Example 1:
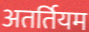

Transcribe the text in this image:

अतर्तियम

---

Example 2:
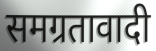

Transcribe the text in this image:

समग्रतावादी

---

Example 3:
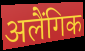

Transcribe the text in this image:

अलैंगिक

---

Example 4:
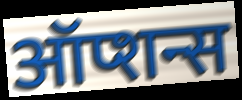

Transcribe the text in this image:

ऑप्शन्स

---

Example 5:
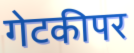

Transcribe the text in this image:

गेटकीपर